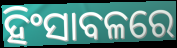
ହିଂସାବଳରେ